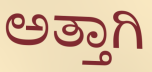
ಅತ್ತಾಗಿ